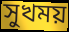
সুখময়